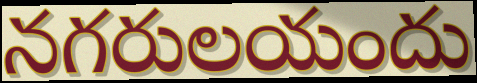
నగరులయందు